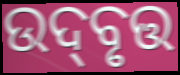
ଉଦ୍‌ବୃତ୍ତ